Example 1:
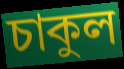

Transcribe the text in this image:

চাকুল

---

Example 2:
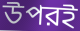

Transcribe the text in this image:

উপরই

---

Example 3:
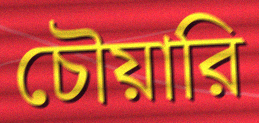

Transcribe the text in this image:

চৌয়ারি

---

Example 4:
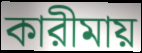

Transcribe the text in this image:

কারীমায়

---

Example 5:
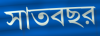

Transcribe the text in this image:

সাতবছর